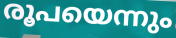
രൂപയെന്നും